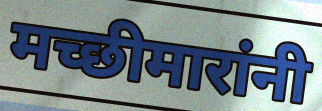
मच्छीमारांनी